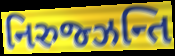
નિરુજ્ઝન્તિ